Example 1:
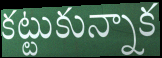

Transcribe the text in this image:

కట్టుకున్నాక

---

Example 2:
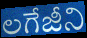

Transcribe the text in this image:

లగేజీని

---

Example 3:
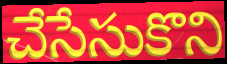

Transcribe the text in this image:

చేసేసుకొని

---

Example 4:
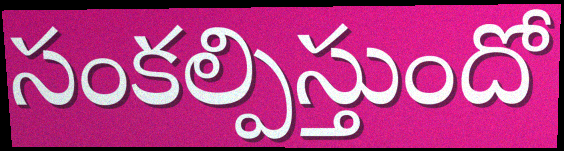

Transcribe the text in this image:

సంకల్పిస్తుందో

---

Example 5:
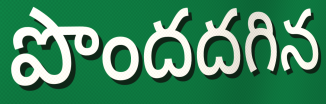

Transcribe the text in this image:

పొందదగిన